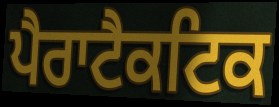
ਪੈਰਾਟੈਕਟਿਕ